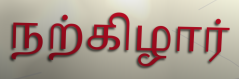
நற்கிழார்